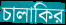
চালাকির